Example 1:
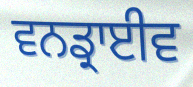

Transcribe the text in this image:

ਵਨਡ੍ਰਾਈਵ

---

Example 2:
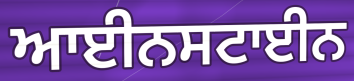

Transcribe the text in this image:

ਆਈਨਸਟਾਈਨ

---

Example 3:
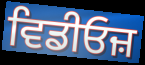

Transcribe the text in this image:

ਵਿਡੀਓਜ਼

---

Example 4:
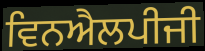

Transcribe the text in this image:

ਵਿਨਐਲਪੀਜੀ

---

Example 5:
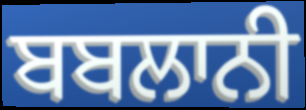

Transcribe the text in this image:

ਬਬਲਾਨੀ